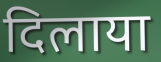
दिलाया